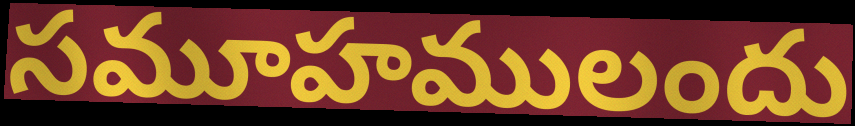
సమూహములందు